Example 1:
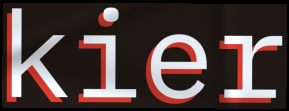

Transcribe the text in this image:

kier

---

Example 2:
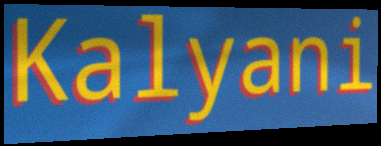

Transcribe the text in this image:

Kalyani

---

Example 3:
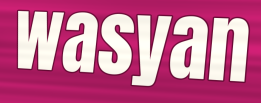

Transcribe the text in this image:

wasyan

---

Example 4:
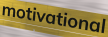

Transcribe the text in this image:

motivational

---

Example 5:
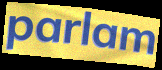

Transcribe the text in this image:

parlam